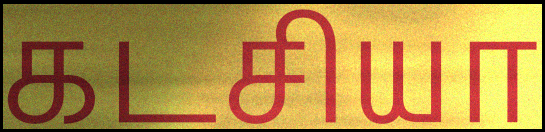
கடசியா